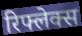
रिफ्लेक्स